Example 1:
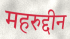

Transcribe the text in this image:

महरुद्दीन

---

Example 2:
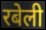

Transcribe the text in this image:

रबेली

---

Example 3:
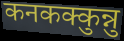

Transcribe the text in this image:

कनकक्कुन्नु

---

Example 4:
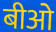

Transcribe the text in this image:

बीओ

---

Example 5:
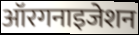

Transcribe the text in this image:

ऑरगनाइजेशन